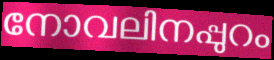
നോവലിനപ്പുറം